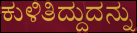
ಕುಳಿತಿದ್ದುದನ್ನು